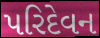
પરિદેવન